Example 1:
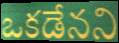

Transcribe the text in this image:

ఒకడేనని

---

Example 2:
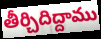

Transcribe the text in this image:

తీర్చిదిద్దాము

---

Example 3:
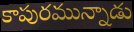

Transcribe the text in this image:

కాపురమున్నాడు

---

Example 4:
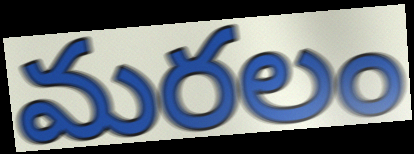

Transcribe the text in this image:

మరలం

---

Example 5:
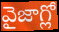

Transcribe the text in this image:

వైజాగ్లో